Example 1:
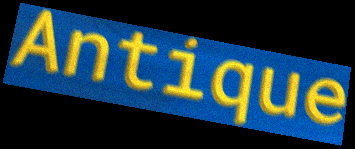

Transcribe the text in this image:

Antique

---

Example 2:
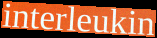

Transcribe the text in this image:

interleukin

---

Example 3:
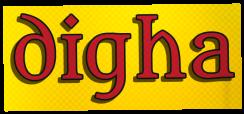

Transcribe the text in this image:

digha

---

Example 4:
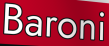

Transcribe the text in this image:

Baroni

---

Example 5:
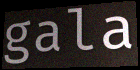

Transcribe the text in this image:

gala